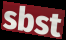
sbst